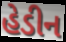
હેડીન